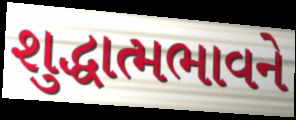
શુદ્ધાત્મભાવને